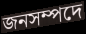
জনসম্পদে